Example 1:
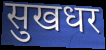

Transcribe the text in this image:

सुखधर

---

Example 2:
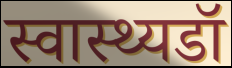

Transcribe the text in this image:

स्वास्थ्यडॉ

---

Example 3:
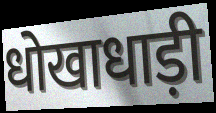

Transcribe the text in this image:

धोखाधाड़ी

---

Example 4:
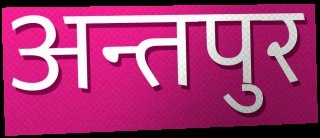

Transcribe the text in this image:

अन्तपुर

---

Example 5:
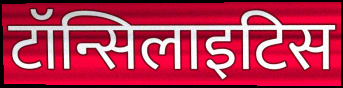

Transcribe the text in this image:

टॉन्सिलाइटिस